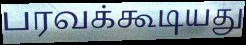
பரவக்கூடியது